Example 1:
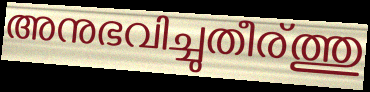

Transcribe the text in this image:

അനുഭവിച്ചുതീര്ത്തു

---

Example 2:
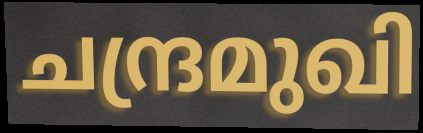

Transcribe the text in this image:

ചന്ദ്രമുഖി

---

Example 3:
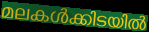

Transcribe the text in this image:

മലകൾക്കിടയിൽ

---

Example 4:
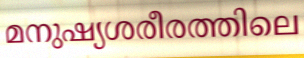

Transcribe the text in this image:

മനുഷ്യശരീരത്തിലെ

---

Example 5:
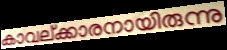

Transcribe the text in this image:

കാവല്ക്കാരനായിരുന്നു